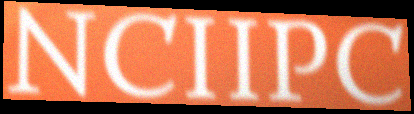
NCIIPC